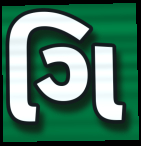
ગિ